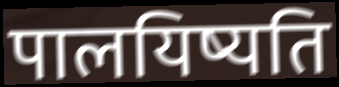
पालयिष्यति